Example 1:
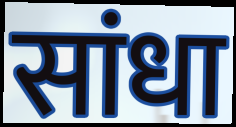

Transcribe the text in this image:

सांधा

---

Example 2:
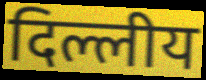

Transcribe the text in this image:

दिल्लीय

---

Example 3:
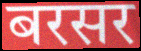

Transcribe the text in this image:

बरसर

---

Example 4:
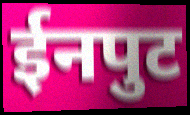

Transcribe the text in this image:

ईनपुट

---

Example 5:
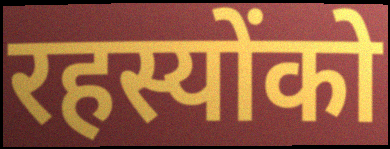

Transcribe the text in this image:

रहस्योंको